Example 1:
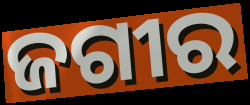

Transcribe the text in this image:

ଜଗୀର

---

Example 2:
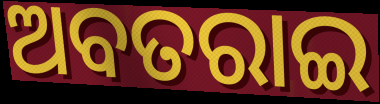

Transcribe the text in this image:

ଅବତରାଇ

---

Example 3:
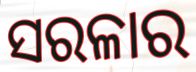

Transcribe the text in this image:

ସରଳାର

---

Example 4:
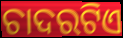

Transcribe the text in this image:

ଚାଦରଟିଏ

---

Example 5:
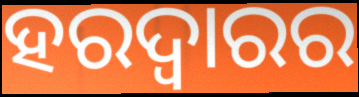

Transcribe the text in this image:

ହରଦ୍ୱାରର